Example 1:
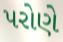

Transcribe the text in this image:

પરોણે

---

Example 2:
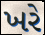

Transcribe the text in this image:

ખરે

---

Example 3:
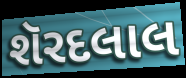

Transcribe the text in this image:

શૅરદલાલ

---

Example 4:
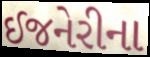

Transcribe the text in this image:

ઈજનેરીના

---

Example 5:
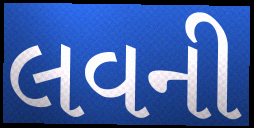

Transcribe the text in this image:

લવની